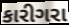
કારીગરા